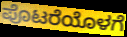
ಪೊಟರೆಯೊಳಗೆ